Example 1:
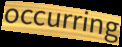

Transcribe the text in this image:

occurring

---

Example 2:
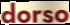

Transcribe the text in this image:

dorso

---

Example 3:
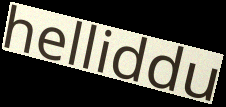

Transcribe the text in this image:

helliddu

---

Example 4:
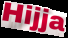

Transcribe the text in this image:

Hijja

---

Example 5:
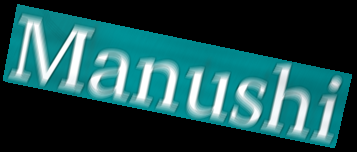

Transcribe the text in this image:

Manushi